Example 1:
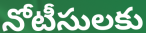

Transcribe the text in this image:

నోటీసులకు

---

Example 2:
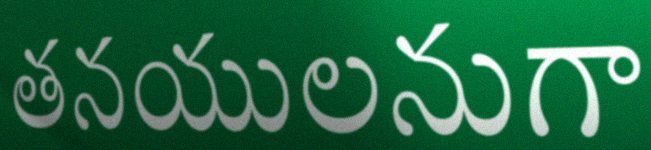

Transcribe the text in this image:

తనయులనుగా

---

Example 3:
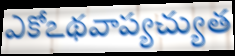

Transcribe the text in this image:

ఎకోఽథవాప్యచ్యుత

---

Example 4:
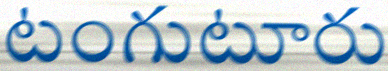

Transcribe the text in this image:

టంగుటూరు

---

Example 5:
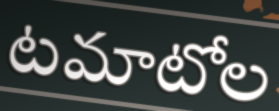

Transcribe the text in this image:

టమాటోల